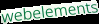
webelements